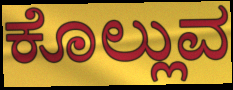
ಕೊಲ್ಲುವ